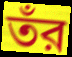
তঁর